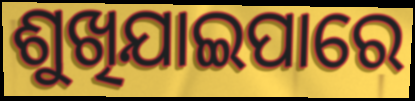
ଶୁଖିଯାଇପାରେ